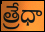
త్రేధా